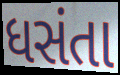
ધસંતા